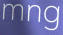
mng